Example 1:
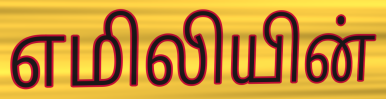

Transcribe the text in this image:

எமிலியின்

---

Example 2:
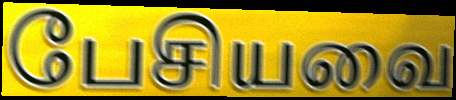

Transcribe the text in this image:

பேசியவை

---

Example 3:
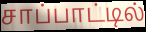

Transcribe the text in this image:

சாப்பாட்டில்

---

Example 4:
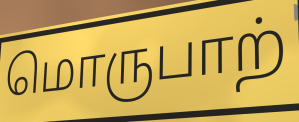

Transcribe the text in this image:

மொருபாற்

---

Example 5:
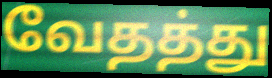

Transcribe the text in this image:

வேதத்து